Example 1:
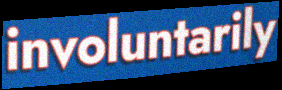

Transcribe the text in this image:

involuntarily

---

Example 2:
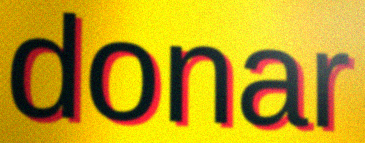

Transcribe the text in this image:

donar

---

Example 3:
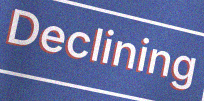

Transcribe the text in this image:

Declining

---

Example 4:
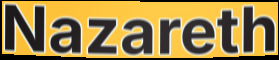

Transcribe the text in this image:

Nazareth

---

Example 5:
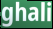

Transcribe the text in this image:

ghali